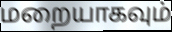
மறையாகவும்